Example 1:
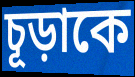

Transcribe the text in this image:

চূড়াকে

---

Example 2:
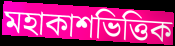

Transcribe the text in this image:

মহাকাশভিত্তিক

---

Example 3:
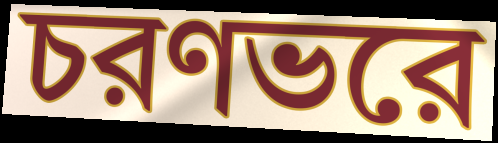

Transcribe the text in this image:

চরণভরে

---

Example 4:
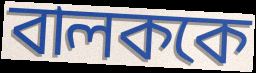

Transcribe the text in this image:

বালককে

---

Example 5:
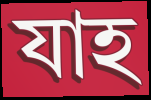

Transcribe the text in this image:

যাহ